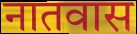
नातवास